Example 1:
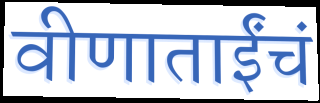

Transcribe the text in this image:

वीणाताईंचं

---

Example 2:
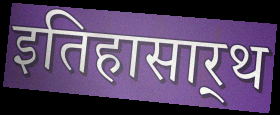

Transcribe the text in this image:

इतिहासार्थ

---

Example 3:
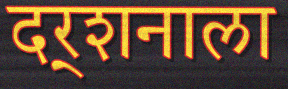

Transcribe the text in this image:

दर्शनाला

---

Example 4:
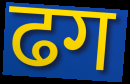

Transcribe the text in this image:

ढग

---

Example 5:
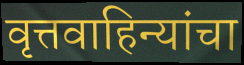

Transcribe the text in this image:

वृत्तवाहिन्यांचा